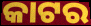
କାଟର